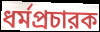
ধর্মপ্রচারক